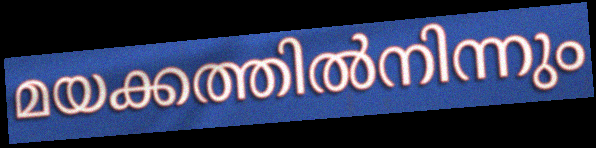
മയക്കത്തിൽനിന്നും